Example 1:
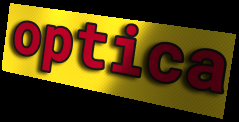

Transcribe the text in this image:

optica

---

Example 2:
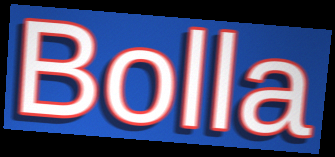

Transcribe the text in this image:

Bolla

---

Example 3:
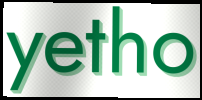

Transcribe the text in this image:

yetho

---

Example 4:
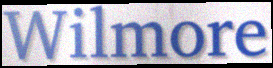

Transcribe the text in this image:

Wilmore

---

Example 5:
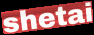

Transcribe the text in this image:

shetai